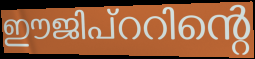
ഈജിപ്ററിന്റെ